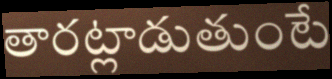
తారట్లాడుతుంటే